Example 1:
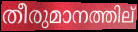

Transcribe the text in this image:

തീരുമാനത്തില്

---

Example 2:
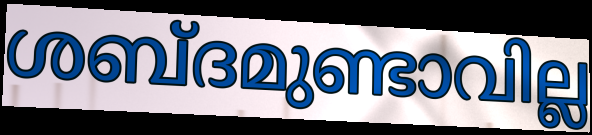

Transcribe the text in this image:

ശബ്ദമുണ്ടാവില്ല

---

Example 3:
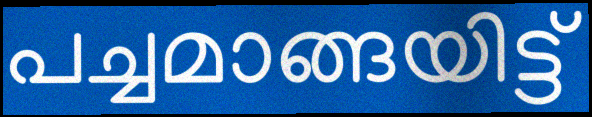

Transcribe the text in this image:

പച്ചമാങ്ങയിട്ട്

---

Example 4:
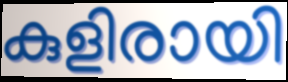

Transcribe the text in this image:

കുളിരായി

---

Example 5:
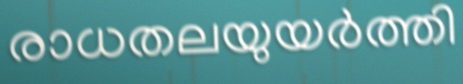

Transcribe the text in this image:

രാധതലയുയർത്തി